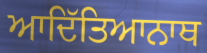
ਆਦਿੱਤਿਆਨਾਥ